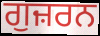
ਗੁਜ਼ਰਨ